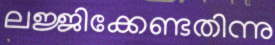
ലജ്ജിക്കേണ്ടതിന്നു